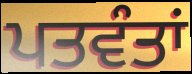
ਪਤਵੰਤਾਂ